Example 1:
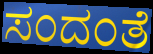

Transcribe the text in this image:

ಸಂದಂತೆ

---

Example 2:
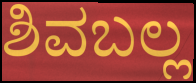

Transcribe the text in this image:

ಶಿವಬಲ್ಲ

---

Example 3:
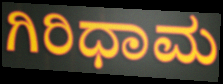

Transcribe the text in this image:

ಗಿರಿಧಾಮ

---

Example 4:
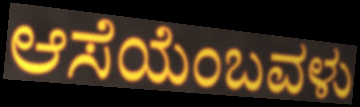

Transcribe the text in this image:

ಆಸೆಯೆಂಬವಳು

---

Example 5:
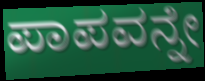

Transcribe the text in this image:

ಪಾಪವನ್ನೇ